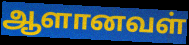
ஆளானவள்